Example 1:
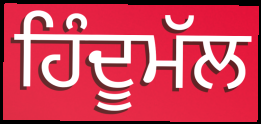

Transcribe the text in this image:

ਹਿੰਦੂਮੱਲ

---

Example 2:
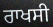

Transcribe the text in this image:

ਰਾਖਸੀ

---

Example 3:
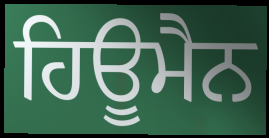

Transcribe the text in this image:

ਹਿਊਮੈਨ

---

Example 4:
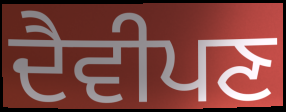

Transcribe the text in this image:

ਦੈਵੀਪਣ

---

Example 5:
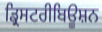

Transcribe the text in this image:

ਡ੍ਰਿਸਟਰੀਬਿਊਸ਼ਨ